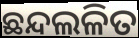
ଛନ୍ଦଲଳିତ